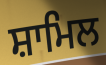
ਸ਼ਾਮਿਲ